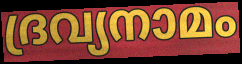
ദ്രവ്യനാമം